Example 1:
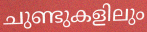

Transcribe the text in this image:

ചുണ്ടുകളിലും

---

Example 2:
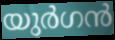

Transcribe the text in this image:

യുർഗൻ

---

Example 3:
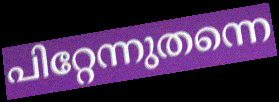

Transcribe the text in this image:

പിറ്റേന്നുതന്നെ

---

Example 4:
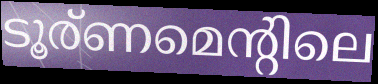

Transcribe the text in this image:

ടൂര്ണമെന്റിലെ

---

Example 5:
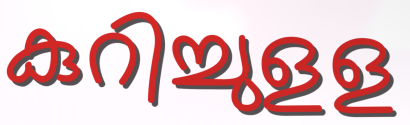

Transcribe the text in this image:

കുറിച്ചുളള